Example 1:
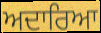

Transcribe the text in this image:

ਅਦਾਰਿਆ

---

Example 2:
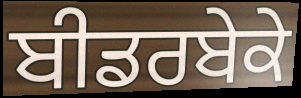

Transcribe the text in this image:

ਬੀਡਰਬੇਕੇ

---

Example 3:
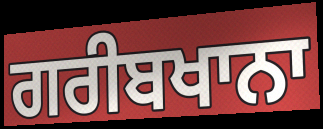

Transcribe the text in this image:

ਗਰੀਬਖਾਨਾ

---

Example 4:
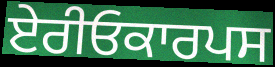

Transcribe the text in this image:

ਏਰੀਓਕਾਰਪਸ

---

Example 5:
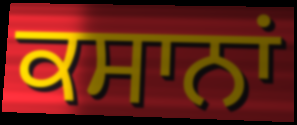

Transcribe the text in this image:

ਕਸਾਨਾਂ